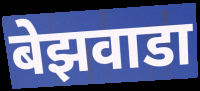
बेझवाडा